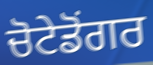
ਚੋਟੇਡੋਂਗਰ